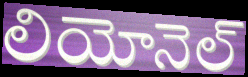
లియోనెల్